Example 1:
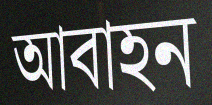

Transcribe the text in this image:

আবাহন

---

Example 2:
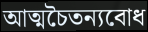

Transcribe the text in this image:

আত্মচৈতন্যবোধ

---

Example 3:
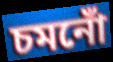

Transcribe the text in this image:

চমনোঁ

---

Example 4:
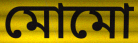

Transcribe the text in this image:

মোমো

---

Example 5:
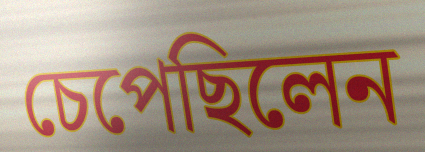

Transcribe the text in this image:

চেপেছিলেন